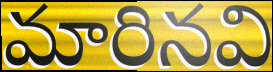
మారినవి